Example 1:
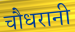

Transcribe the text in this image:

चौधरानी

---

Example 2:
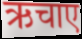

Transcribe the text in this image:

ऋचाए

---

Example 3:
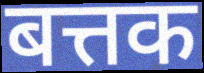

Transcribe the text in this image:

बत्तक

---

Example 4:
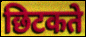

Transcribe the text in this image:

छिटकते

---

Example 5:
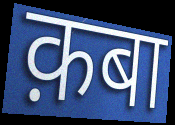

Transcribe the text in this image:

क़बा